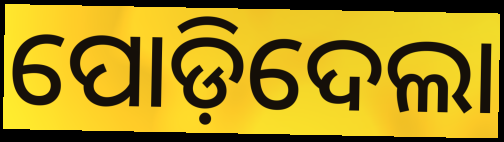
ପୋଡ଼ିଦେଲା